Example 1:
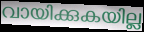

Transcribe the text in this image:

വായിക്കുകയില്ല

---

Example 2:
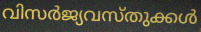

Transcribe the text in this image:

വിസർജ്യവസ്തുക്കൾ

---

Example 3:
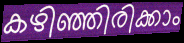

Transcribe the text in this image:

കഴിഞ്ഞിരിക്കാം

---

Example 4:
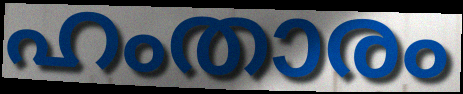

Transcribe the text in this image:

ഹംതാരം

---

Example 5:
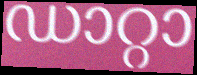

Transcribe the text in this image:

ഡാറ്റാ